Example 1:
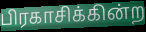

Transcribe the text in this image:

பிரகாசிக்கின்ற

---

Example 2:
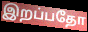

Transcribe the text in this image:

இறப்பதோ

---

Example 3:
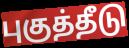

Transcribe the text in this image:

புகுத்தீடு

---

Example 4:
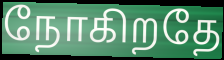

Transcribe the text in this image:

நோகிறதே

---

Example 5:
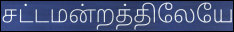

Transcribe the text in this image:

சட்டமன்றத்திலேயே